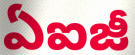
ఏఐజీ